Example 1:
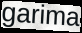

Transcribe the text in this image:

garima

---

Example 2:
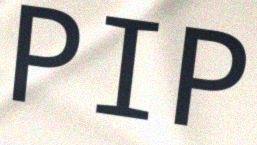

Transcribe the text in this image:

PIP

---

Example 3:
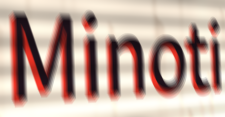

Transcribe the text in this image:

Minoti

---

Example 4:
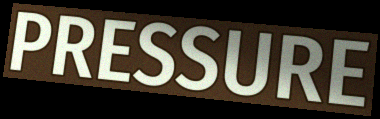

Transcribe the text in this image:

PRESSURE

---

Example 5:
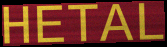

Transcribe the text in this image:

HETAL